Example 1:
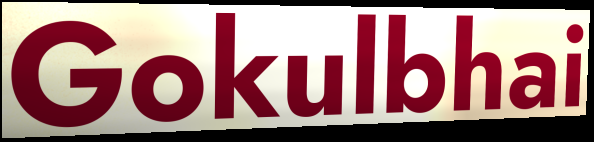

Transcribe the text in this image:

Gokulbhai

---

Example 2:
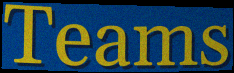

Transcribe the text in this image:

Teams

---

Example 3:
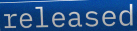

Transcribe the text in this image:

released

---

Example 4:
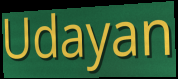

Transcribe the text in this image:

Udayan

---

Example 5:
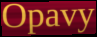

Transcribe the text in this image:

Opavy